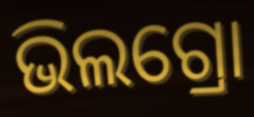
ଭିଲଗ୍ରୋ